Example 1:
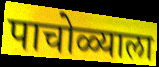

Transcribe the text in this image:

पाचोळ्याला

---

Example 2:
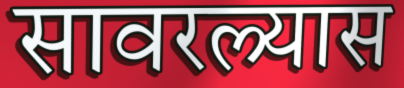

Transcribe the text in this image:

सावरल्यास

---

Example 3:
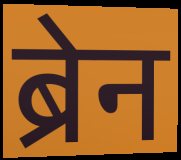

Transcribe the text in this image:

ब्रेन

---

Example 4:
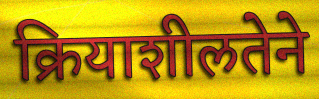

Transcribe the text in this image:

क्रियाशीलतेने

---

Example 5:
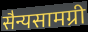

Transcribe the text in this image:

सैन्यसामग्री